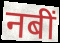
नबीं